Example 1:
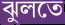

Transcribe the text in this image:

ঝুলতে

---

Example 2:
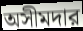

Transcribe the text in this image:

অসীমদার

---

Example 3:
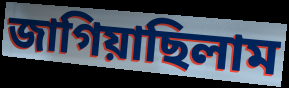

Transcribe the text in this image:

জাগিয়াছিলাম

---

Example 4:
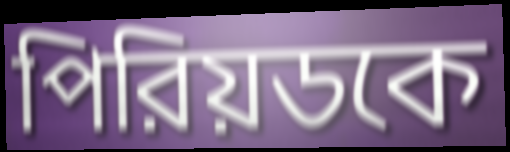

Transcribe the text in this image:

পিরিয়ডকে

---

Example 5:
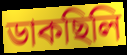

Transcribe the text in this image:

ডাকছিলি